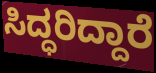
ಸಿದ್ಧರಿದ್ದಾರೆ